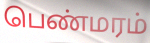
பெண்மரம்